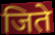
जिते